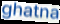
ghatna